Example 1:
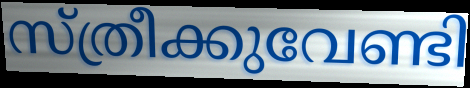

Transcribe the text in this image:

സ്ത്രീക്കുവേണ്ടി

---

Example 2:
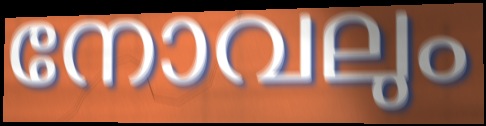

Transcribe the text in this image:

നോവലും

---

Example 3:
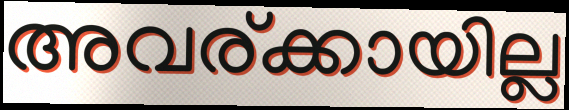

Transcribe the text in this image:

അവര്ക്കായില്ല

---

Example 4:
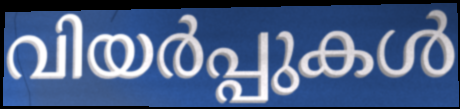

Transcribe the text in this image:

വിയർപ്പുകൾ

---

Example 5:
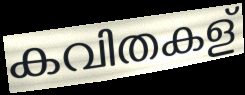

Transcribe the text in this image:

കവിതകള്